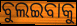
ବୁଲଇବାକୁ